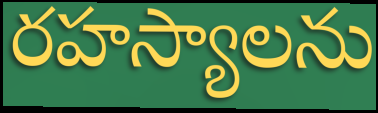
రహస్యాలను